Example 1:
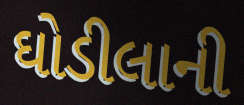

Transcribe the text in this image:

ઘોડીલાની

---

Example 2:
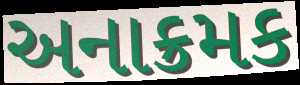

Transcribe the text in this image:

અનાક્રમક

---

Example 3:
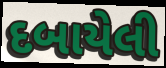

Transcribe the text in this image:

દબાયેલી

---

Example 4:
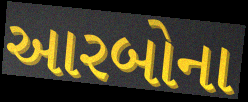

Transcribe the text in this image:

આરબોના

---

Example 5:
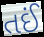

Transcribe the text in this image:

તઈં